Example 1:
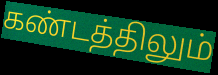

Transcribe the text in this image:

கண்டத்திலும்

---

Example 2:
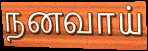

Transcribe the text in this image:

நனவாய்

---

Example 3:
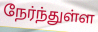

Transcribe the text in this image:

நேர்ந்துள்ள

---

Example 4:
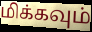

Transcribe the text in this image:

மிக்கவும்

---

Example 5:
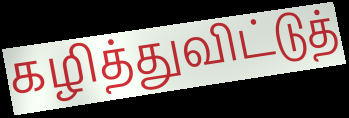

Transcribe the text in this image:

கழித்துவிட்டுத்